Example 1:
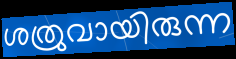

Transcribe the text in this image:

ശത്രുവായിരുന്ന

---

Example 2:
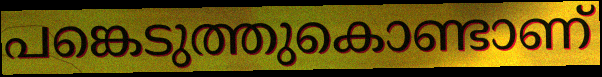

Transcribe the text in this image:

പങ്കെടുത്തുകൊണ്ടാണ്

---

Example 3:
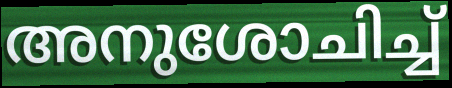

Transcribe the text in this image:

അനുശോചിച്ച്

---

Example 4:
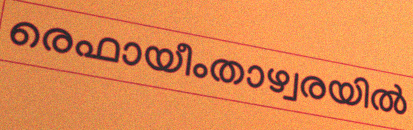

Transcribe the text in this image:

രെഫായീംതാഴ്വരയിൽ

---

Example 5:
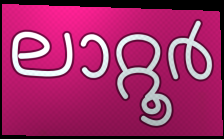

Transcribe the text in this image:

ലാറ്റൂർ